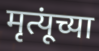
मृत्यूंच्या